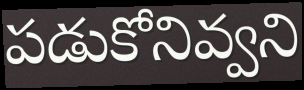
పడుకోనివ్వని